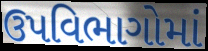
ઉપવિભાગોમાં